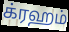
க்ரஹம்